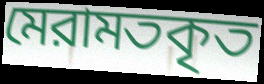
মেরামতকৃত